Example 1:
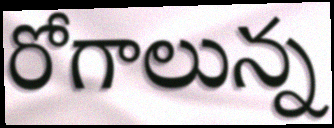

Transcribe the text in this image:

రోగాలున్న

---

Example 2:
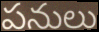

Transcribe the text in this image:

పనులు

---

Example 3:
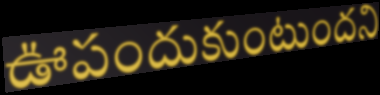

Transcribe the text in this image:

ఊపందుకుంటుందని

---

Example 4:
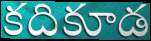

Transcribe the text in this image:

కదికూడ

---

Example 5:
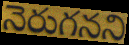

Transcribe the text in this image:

నెరుగనని